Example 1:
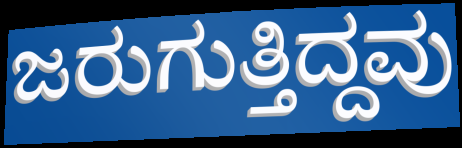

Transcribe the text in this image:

ಜರುಗುತ್ತಿದ್ದವು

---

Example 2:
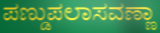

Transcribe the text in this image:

ಪಣ್ಡುಪಲಾಸವಣ್ಣಾ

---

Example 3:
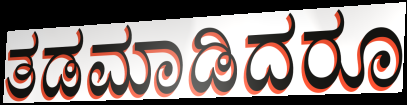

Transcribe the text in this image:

ತಡಮಾಡಿದರೂ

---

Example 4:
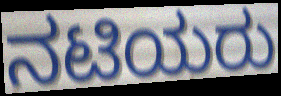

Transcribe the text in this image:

ನಟಿಯರು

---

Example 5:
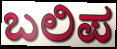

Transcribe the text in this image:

ಬಲಿಪ